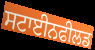
ਸਟਾਈਨਫੀਲਡ